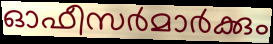
ഓഫീസർമാർക്കും